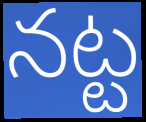
నట్ట